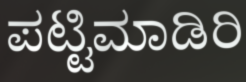
ಪಟ್ಟಿಮಾಡಿರಿ